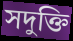
সদুক্তি